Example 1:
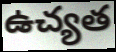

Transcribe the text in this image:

ఉచ్యత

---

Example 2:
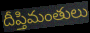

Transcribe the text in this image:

దీప్తిమంతులు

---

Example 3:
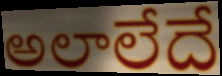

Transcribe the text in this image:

అలాలేదే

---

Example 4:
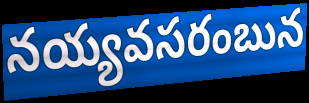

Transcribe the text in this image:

నయ్యవసరంబున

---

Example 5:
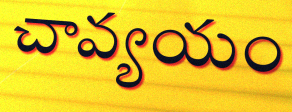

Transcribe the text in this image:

చావ్యయం